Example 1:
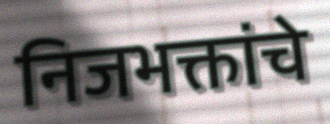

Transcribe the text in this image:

निजभक्तांचे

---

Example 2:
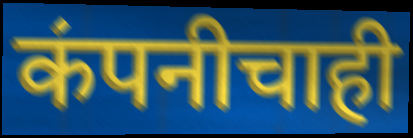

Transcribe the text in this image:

कंपनीचाही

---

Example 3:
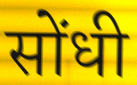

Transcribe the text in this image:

सोंधी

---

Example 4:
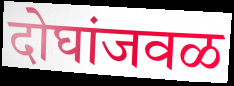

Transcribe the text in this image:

दोघांजवळ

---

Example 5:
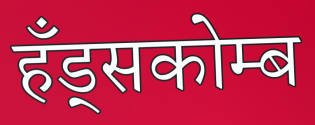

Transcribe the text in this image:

हँड्सकोम्ब